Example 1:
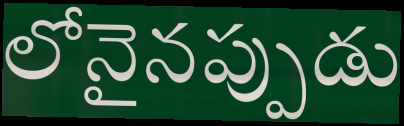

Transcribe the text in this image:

లోనైనప్పుడు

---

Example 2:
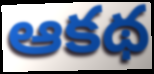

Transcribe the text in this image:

ఆకథ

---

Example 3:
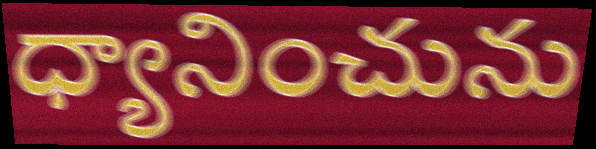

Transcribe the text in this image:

ధ్యానించును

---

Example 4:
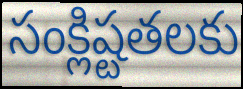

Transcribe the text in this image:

సంక్లిష్టతలకు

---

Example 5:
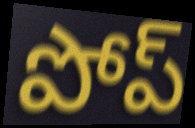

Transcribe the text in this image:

పోప్